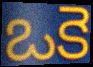
ఒకె